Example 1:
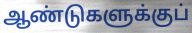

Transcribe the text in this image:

ஆண்டுகளுக்குப்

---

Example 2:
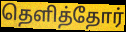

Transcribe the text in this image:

தெளித்தோர்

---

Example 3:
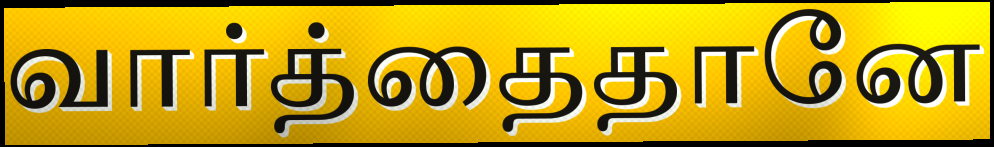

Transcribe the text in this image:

வார்த்தைதானே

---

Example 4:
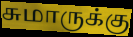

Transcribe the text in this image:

சுமாருக்கு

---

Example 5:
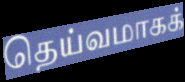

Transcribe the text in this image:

தெய்வமாகக்